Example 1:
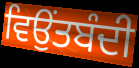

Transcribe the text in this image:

ਵਿਉਂਤਬੰਦੀ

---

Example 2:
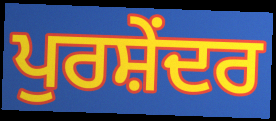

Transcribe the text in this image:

ਪੁਰਸ਼ੇਂਦਰ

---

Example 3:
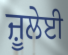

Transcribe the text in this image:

ਜ਼ੂਲੇਈ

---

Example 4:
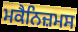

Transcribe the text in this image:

ਮਕੈਨਿਜ਼ਮਸ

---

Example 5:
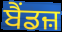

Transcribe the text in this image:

ਬੈਂਡਜ਼